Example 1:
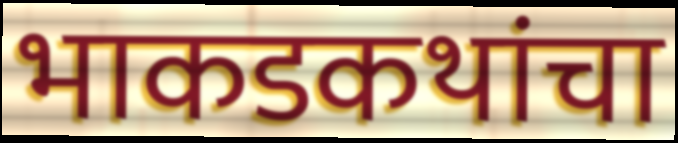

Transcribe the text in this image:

भाकडकथांचा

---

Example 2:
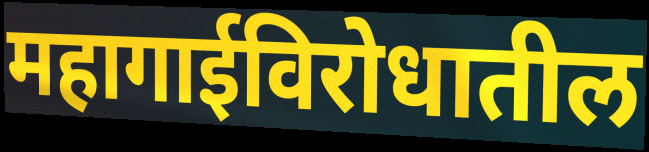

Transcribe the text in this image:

महागाईविरोधातील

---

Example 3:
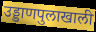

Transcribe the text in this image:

उड्डाणपुलाखाली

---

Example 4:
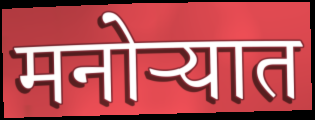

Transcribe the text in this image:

मनोऱ्यात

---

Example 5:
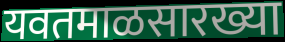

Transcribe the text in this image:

यवतमाळसारख्या